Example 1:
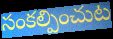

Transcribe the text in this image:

సంకల్పించుట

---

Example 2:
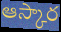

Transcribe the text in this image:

ఆస్కార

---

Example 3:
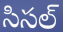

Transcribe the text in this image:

సిసల్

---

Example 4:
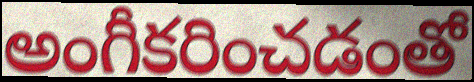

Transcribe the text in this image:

అంగీకరించడంతో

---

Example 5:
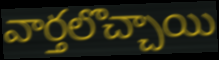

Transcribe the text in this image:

వార్తలొచ్చాయి